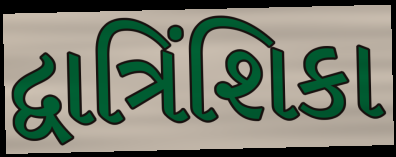
દ્વાત્રિંશિકા